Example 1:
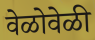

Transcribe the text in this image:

वेळोवेळी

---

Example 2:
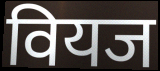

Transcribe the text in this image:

वियज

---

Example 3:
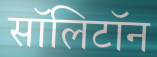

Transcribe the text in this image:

सॉलिटॉन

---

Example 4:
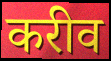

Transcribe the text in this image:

करीव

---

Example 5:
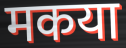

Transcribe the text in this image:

मकया